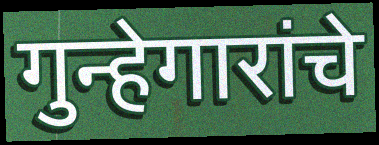
गुन्हेगारांचे